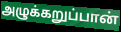
அழுக்கறுப்பான்